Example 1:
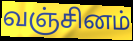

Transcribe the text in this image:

வஞ்சினம்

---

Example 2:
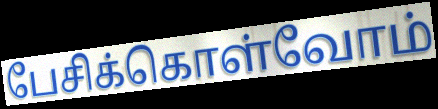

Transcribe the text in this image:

பேசிக்கொள்வோம்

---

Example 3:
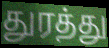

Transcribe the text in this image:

துரத்து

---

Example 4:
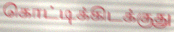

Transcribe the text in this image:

கொட்டிக்கிடக்குது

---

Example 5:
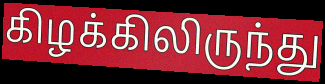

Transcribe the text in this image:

கிழக்கிலிருந்து